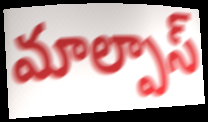
మాల్పాస్